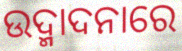
ଉଦ୍ମାଦନାରେ